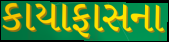
કાયાફાસના